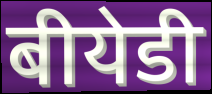
बीयेडी